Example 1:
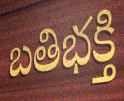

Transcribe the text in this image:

బతిభక్తి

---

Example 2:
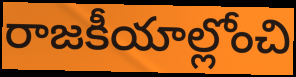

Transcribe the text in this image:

రాజకీయాల్లోంచి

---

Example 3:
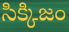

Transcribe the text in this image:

సిక్కిజం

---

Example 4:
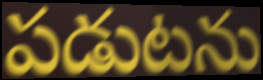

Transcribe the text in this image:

పడుటను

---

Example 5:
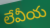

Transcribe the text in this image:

లేవీయ